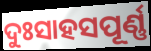
ଦୁଃସାହସପୂର୍ଣ୍ଣ